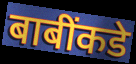
बाबींकडे